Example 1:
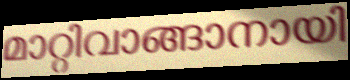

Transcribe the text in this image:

മാറ്റിവാങ്ങാനായി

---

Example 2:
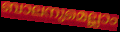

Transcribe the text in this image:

ബാലനുമെല്ലാം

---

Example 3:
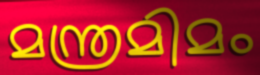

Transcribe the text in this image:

മന്ത്രമിമം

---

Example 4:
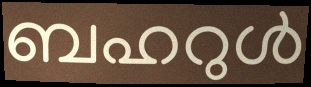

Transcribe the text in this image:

ബഹറുൾ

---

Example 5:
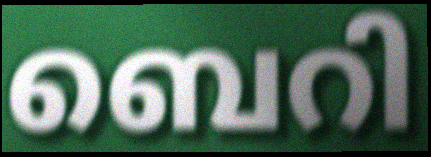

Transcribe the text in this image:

ബെറി